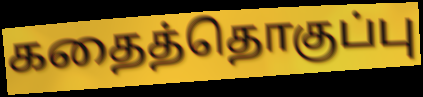
கதைத்தொகுப்பு